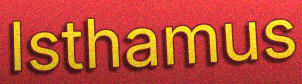
Isthamus